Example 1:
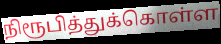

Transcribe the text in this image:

நிரூபித்துக்கொள்ள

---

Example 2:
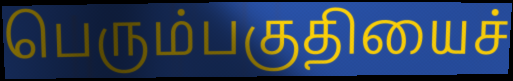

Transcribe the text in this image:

பெரும்பகுதியைச்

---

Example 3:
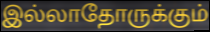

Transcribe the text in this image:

இல்லாதோருக்கும்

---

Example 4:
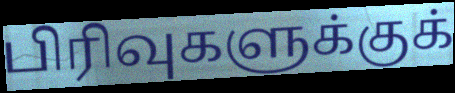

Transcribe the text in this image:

பிரிவுகளுக்குக்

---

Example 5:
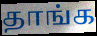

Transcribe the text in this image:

தாங்க